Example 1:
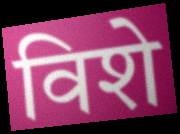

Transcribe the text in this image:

विशे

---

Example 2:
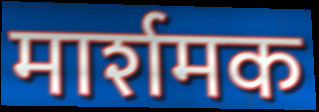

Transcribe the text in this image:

मार्शमक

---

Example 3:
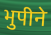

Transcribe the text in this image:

भुपीने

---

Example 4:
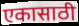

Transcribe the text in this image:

एकासाठी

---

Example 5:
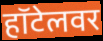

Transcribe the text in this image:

हॉटेलवर